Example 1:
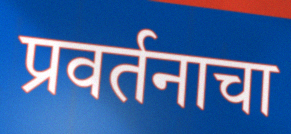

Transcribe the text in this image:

प्रवर्तनाचा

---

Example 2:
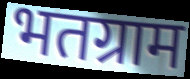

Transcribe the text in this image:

भतग्राम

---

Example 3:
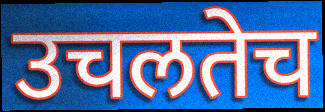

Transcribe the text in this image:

उचलतेच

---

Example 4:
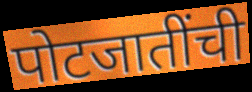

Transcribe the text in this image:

पोटजातींची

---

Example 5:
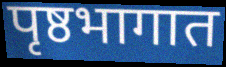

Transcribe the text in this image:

पृष्ठभागात